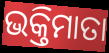
ଭକ୍ତିମାତା